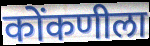
कोंकणीला